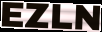
EZLN